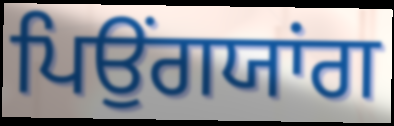
ਪਿਉਂਗਯਾਂਗ